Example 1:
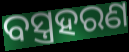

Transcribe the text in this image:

ବସ୍ତ୍ରହରଣ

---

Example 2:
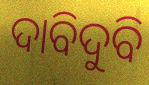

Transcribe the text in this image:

ଦାବିଦୁବି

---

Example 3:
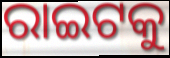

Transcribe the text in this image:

ରାଇଟକୁ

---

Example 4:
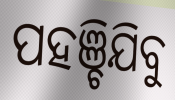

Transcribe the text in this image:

ପହଞ୍ଚିଯିବୁ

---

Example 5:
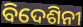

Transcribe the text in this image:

ବିଦେଶିନୀ